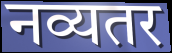
नव्यतर